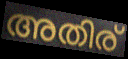
അതിര്